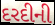
દરદીની